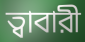
ত্বাবারী